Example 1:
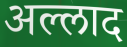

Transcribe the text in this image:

अल्लाद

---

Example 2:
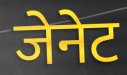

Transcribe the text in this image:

जेनेट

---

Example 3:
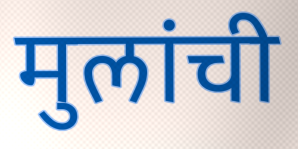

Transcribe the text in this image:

मुलांची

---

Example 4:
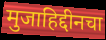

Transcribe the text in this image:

मुजाहिद्दीनचा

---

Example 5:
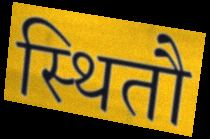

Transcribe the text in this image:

स्थितौ